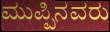
ಮುಪ್ಪಿನವರು